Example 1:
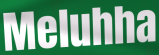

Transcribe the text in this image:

Meluhha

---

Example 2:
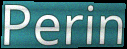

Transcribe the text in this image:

Perin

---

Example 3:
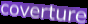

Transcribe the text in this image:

coverture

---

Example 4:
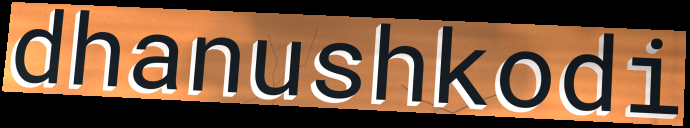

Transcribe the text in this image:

dhanushkodi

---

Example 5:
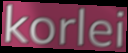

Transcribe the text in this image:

korlei